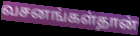
வசனங்கள்தான்